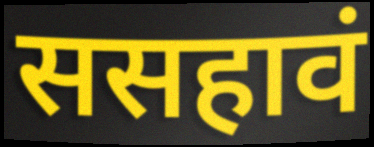
ससहावं